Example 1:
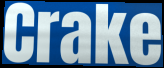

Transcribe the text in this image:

Crake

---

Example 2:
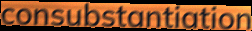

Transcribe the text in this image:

consubstantiation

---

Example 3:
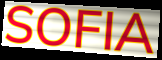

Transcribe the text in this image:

SOFIA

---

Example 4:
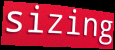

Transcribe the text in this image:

sizing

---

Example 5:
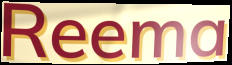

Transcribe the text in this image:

Reema